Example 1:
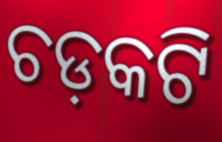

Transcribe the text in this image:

ଚଡ଼କଟି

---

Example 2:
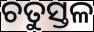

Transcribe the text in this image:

ଚତୁସ୍ତଳ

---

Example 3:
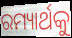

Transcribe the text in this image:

ରମ୍ୟାର୍ଥକୁ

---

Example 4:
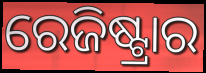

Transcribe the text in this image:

ରେଜିଷ୍ଟ୍ରାର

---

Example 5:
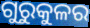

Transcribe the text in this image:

ଗୁରୁକୁଳର